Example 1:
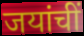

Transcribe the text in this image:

जयांचीं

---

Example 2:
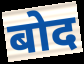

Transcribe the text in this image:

बोद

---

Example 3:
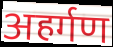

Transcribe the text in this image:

अहर्गण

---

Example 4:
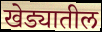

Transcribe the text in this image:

खेड्यातील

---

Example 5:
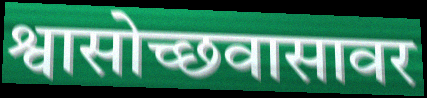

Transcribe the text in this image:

श्वासोच्छवासावर